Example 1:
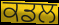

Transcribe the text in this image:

ਕਡਲ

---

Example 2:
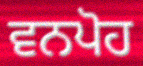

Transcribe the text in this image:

ਵਨਪੋਹ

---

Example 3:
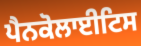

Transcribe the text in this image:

ਪੈਨਕੋਲਾਈਟਿਸ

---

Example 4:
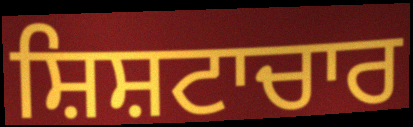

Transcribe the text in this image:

ਸ਼ਿਸ਼ਟਾਚਾਰ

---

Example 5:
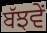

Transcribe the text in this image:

ਬੱਝਵੇਂ